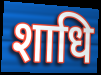
शाधि